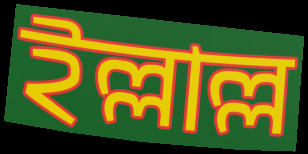
ইল্লাল্ল